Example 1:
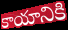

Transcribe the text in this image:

కాయానికి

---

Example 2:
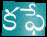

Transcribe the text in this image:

కఫే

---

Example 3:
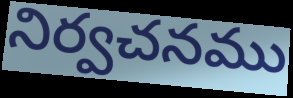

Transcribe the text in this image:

నిర్వచనము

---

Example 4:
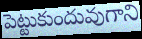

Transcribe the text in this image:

పెట్టుకుందువుగాని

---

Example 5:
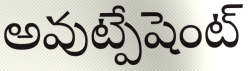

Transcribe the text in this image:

అవుట్పేషెంట్